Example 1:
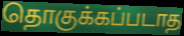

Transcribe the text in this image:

தொகுக்கப்படாத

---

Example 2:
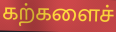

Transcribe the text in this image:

கற்களைச்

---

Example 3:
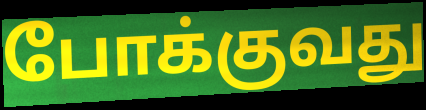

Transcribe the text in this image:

போக்குவது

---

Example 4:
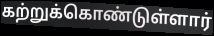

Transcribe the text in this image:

கற்றுக்கொண்டுள்ளார்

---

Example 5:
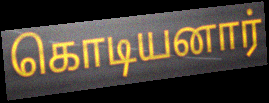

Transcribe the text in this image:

கொடியனார்